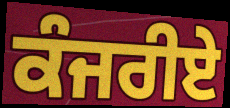
ਕੰਜਰੀਏ